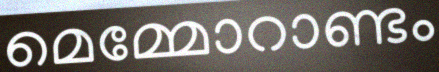
മെമ്മോറാണ്ടം